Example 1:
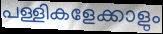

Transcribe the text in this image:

പള്ളികളേക്കാളും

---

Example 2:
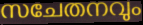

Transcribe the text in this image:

സചേതനവും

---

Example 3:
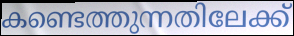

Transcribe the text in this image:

കണ്ടെത്തുന്നതിലേക്ക്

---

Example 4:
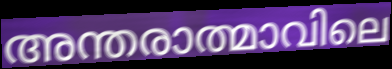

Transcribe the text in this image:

അന്തരാത്മാവിലെ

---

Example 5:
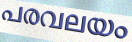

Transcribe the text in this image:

പരവലയം